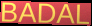
BADAL